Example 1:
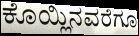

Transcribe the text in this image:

ಕೊಯ್ಲಿನವರೆಗೂ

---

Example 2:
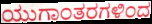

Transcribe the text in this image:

ಯುಗಾಂತರಗಳಿಂದ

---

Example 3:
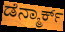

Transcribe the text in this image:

ಡೆನ್ಮಾರ್ಕ್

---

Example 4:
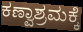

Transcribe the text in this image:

ಕಣ್ವಾಶ್ರಮಕ್ಕೆ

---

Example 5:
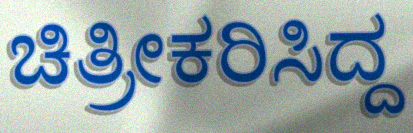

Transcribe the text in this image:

ಚಿತ್ರೀಕರಿಸಿದ್ದ